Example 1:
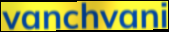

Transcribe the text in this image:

vanchvani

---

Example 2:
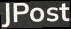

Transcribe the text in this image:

JPost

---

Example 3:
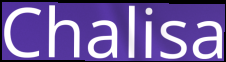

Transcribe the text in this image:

Chalisa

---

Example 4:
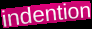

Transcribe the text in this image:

indention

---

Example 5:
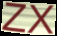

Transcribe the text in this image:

ZX